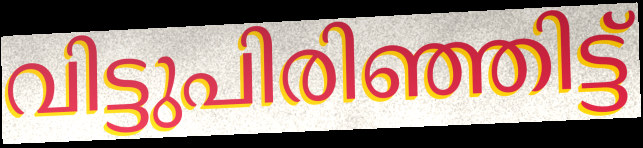
വിട്ടുപിരിഞ്ഞിട്ട്